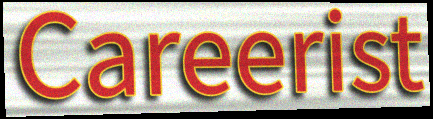
Careerist